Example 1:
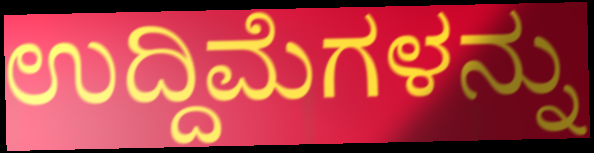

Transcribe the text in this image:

ಉದ್ದಿಮೆಗಳನ್ನು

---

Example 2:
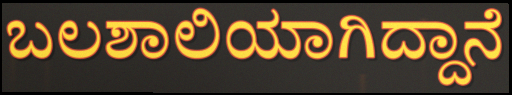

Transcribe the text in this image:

ಬಲಶಾಲಿಯಾಗಿದ್ದಾನೆ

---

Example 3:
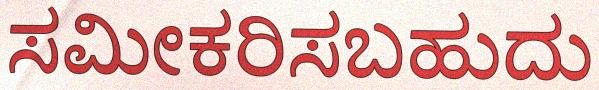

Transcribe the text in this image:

ಸಮೀಕರಿಸಬಹುದು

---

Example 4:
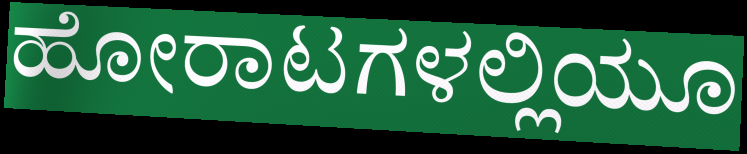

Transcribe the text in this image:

ಹೋರಾಟಗಳಲ್ಲಿಯೂ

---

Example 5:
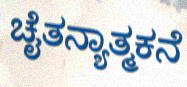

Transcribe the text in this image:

ಚೈತನ್ಯಾತ್ಮಕನೆ